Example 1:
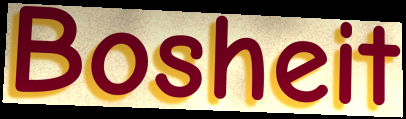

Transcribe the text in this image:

Bosheit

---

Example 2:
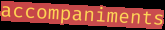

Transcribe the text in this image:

accompaniments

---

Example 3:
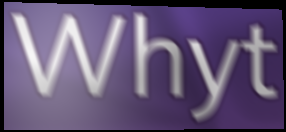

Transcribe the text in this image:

Whyt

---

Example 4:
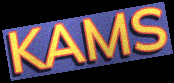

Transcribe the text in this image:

KAMS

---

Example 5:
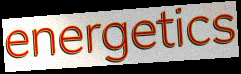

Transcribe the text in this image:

energetics